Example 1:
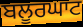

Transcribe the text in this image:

ਬਲੂਰਘਾਟ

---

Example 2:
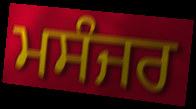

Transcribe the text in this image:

ਮਸੰਜਰ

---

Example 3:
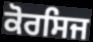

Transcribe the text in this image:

ਕੋਰਸਿਜ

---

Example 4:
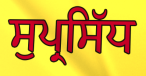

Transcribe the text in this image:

ਸੁਪ੍ਰਸਿੱਧ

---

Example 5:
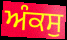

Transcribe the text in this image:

ਅੰਕਸੁ